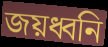
জয়ধ্বনি